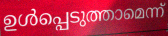
ഉൾപ്പെടുത്താമെന്ന്